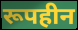
रूपहीन